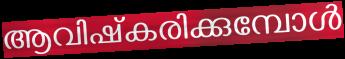
ആവിഷ്‌കരിക്കുമ്പോൾ